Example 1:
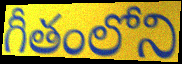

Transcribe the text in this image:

గీతంలోని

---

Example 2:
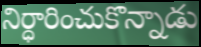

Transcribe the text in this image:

నిర్ధారించుకొన్నాడు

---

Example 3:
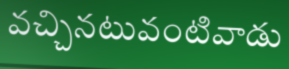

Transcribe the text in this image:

వచ్చినటువంటివాడు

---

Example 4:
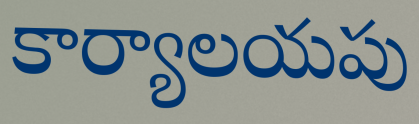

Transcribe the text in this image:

కార్యాలయపు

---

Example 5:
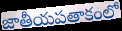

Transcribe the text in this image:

జాతీయపతాకంలో